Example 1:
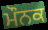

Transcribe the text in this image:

ਮੌਨਕ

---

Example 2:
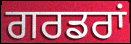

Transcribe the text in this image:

ਗਰਡਰਾਂ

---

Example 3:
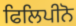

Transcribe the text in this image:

ਫਿਲਿਪੀਨੋ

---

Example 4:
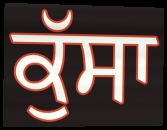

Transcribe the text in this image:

ਕੁੱਸਾ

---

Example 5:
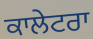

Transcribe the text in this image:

ਕਾਲੇਟਰਾ